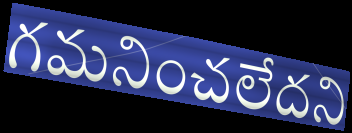
గమనించలేదని